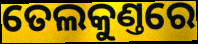
ତେଲକୁଣ୍ତରେ